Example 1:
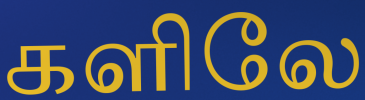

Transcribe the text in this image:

களிலே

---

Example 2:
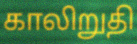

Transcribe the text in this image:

காலிறுதி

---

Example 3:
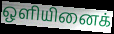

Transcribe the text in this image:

ஒளியினைக்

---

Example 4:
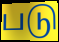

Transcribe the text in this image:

படு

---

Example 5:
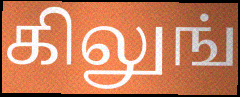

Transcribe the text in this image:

கிலுங்